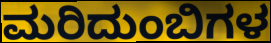
ಮರಿದುಂಬಿಗಳ